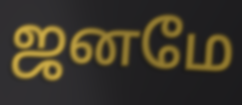
ஜனமே